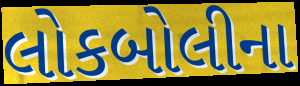
લોકબોલીના